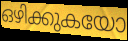
ഒഴിക്കുകയോ